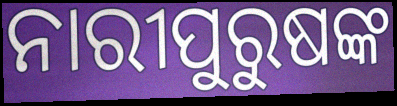
ନାରୀପୁରୁଷଙ୍କ